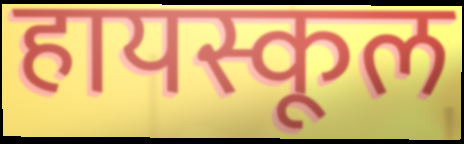
हायस्‍कूल